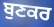
ਬੁਣਕਰ